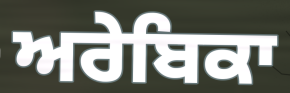
ਅਰੇਬਿਕਾ